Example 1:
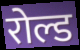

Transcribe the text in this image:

रोल्ड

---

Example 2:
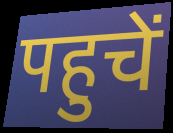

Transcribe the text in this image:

पहुचें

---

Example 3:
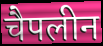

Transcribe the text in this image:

चैपलीन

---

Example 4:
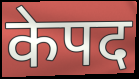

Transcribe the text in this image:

केपद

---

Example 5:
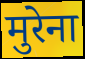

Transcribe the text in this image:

मुरेना